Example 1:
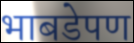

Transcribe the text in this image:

भाबडेपण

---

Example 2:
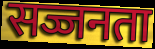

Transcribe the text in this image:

सज्जनता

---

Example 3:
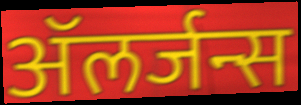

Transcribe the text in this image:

ॲलर्जन्स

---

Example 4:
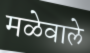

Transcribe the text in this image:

मळेवाले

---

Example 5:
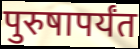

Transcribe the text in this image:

पुरुषापर्यंत